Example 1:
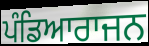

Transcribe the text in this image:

ਪੰਡਿਆਰਾਜਨ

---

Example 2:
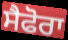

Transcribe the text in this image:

ਸੈਫੋਰਾ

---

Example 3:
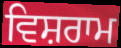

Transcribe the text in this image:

ਵਿਸ਼ਰਾਮ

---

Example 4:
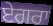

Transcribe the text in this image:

ਏਗਰਾ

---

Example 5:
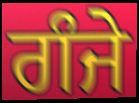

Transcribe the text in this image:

ਗੰਜੇ